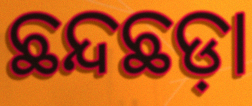
ଛନ୍ଦଛଡ଼ା